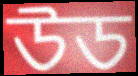
উড